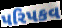
પરિપકવ